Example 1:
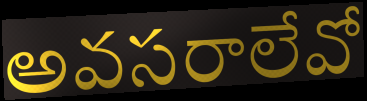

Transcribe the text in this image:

అవసరాలేవో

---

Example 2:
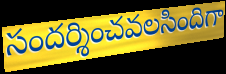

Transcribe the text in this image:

సందర్శించవలసిందిగా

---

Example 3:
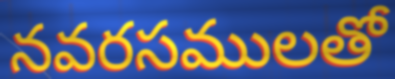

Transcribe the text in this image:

నవరసములతో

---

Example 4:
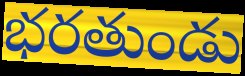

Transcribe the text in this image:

భరతుండు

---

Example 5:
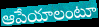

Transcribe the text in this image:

ఆపేయాలంటూ